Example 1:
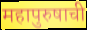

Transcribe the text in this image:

महापुरुषाची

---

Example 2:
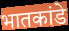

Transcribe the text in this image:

भातकांडे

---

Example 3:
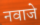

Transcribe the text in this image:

नवाजे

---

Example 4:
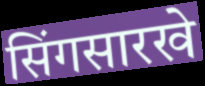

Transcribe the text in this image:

सिंगसारखे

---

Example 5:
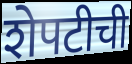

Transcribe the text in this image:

शेपटीची